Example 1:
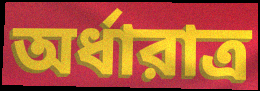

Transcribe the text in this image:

অর্ধারাত্র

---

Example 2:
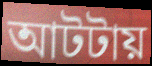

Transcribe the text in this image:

আটটায়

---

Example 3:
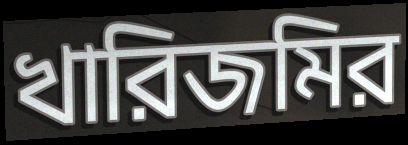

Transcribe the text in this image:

খারিজমির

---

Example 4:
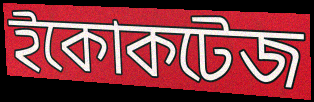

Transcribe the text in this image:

ইকোকটেজ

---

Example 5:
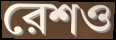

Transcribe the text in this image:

রেশও